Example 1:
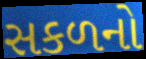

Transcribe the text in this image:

સકળનો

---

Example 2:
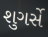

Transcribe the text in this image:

શુગર્સે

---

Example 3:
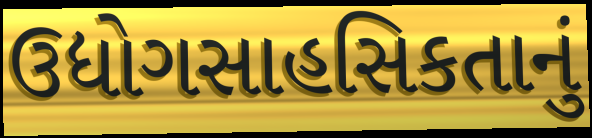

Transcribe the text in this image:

ઉદ્યોગસાહસિકતાનું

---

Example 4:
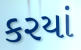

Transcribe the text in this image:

કરયાં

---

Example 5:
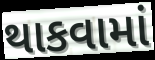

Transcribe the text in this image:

થાકવામાં